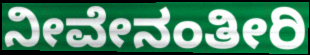
ನೀವೇನಂತೀರಿ